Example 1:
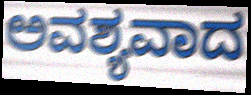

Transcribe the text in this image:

ಅವಶ್ಯವಾದ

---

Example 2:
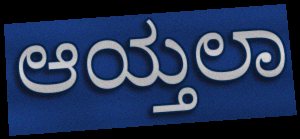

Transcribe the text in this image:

ಆಯ್ತಲಾ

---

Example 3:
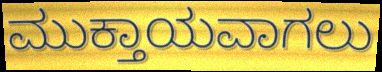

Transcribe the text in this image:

ಮುಕ್ತಾಯವಾಗಲು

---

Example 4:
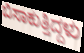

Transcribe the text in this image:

ಬಿಸಾಕುತ್ತಿದ್ದಳು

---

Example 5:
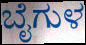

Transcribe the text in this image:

ಬೈಗುಳ